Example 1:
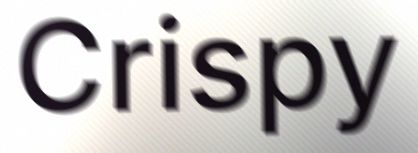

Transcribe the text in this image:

Crispy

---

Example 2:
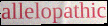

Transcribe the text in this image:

allelopathic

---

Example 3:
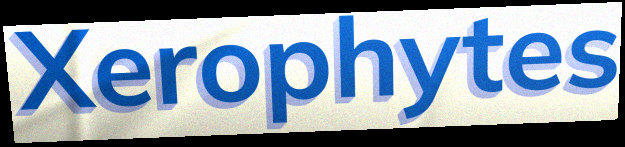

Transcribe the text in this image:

Xerophytes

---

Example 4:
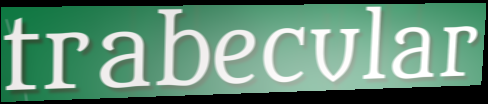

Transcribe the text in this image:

trabecular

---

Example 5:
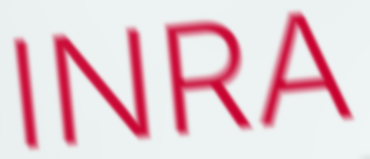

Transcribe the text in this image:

INRA